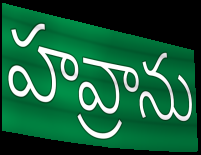
హవ్రాను